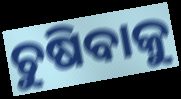
ଚୁଷିବାକୁ